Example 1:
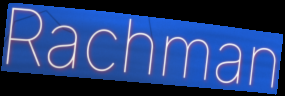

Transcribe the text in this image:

Rachman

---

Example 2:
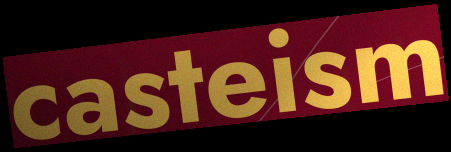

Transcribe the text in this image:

casteism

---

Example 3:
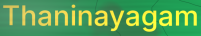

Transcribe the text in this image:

Thaninayagam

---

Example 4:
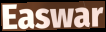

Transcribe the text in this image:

Easwar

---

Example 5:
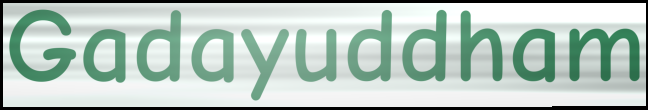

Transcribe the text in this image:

Gadayuddham